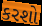
કરશો